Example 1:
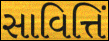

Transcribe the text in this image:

સાવિત્તિં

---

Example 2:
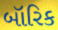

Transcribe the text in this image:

બૉરિક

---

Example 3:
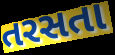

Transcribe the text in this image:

તરસતા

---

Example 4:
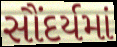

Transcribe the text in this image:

સૌંદર્યમાં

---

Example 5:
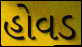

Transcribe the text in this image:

હોવડ